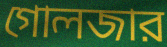
গোলজার